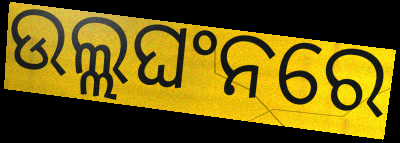
ଉଲ୍ଲଘଂନରେ